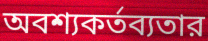
অবশ্যকর্তব্যতার